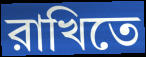
রাখিতে